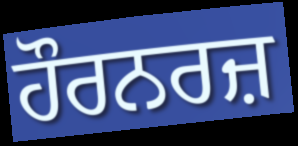
ਹੌਰਨਰਜ਼